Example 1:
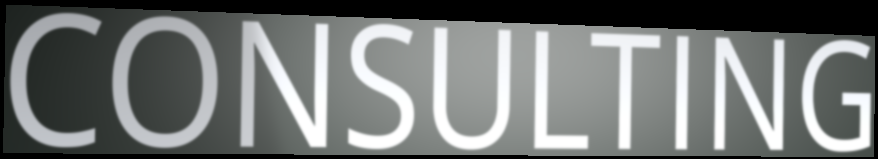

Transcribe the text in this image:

CONSULTING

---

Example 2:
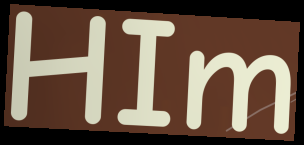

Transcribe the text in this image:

HIm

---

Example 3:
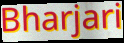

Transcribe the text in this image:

Bharjari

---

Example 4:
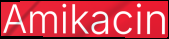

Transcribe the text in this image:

Amikacin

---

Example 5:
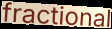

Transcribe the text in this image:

fractional